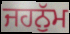
ਜਹਨੁੱਮ